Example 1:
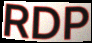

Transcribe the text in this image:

RDP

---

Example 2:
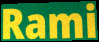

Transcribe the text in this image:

Rami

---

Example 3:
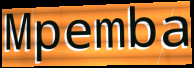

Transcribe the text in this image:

Mpemba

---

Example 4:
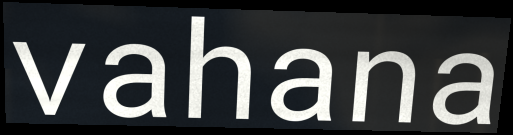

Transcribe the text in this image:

vahana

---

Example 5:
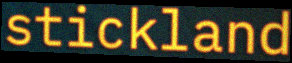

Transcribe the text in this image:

stickland